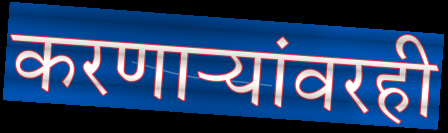
करणाऱ्यांवरही